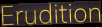
Erudition